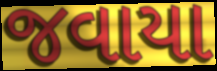
જવાયા